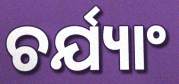
ଚର୍ଯ୍ୟାଂ